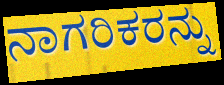
ನಾಗರಿಕರನ್ನು